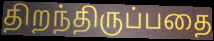
திறந்திருப்பதை